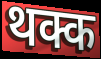
थक्क